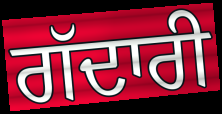
ਗੱਦਾਰੀ